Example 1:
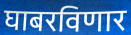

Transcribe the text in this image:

घाबरविणार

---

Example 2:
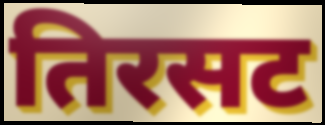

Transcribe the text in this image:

तिरसट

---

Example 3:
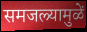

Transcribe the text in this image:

समजल्यामुळें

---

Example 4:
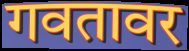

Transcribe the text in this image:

गवतावर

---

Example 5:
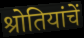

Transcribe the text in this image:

श्रोतियांचें